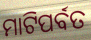
ମାଟିପର୍ବତ